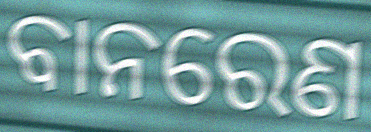
ବାନରେଣ